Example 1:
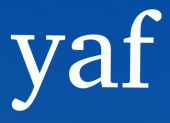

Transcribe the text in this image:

yaf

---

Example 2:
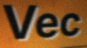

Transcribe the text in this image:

Vec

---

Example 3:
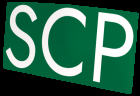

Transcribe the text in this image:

SCP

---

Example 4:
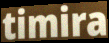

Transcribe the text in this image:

timira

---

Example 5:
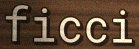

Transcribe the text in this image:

ficci